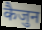
कैजुन